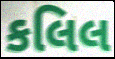
કલિલ